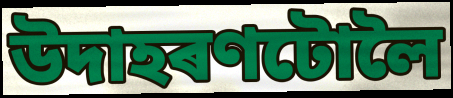
উদাহৰণটোলৈ